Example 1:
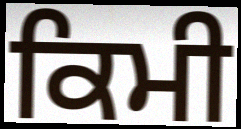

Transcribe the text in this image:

ਕਿਮੀ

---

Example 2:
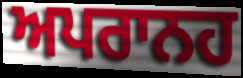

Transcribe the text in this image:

ਅਪਰਾਨਹ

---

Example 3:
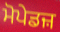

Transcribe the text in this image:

ਮੋਪੇਡਜ਼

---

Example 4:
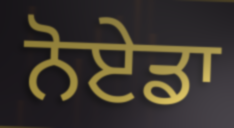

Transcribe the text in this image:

ਨੋਏਡਾ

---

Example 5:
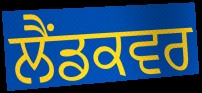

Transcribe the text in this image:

ਲੈਂਡਕਵਰ